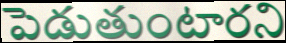
పెడుతుంటారని